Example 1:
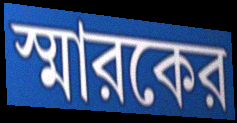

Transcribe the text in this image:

স্মারকের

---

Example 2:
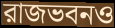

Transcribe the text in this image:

রাজভবনও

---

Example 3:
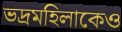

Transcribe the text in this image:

ভদ্রমহিলাকেও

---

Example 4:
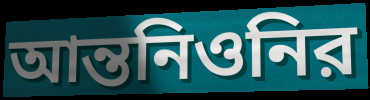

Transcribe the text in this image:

আন্তনিওনির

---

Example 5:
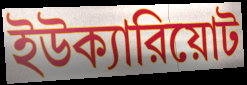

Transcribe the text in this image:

ইউক্যারিয়োট